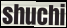
shuchi